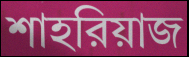
শাহরিয়াজ